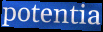
potentia